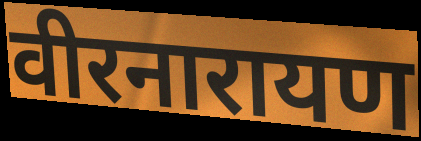
वीरनारायण